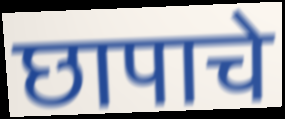
छापाचे